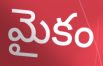
మైకం